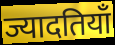
ज्यादतियाँ